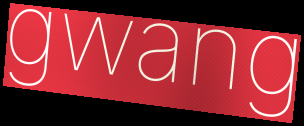
gwang